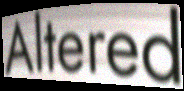
Altered